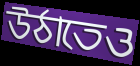
উঠাতেও